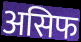
असिफ